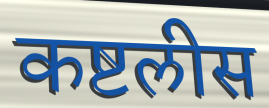
कष्टलीस